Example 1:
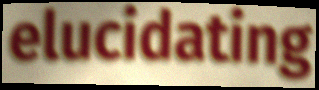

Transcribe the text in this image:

elucidating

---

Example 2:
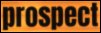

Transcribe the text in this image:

prospect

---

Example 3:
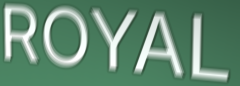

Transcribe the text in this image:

ROYAL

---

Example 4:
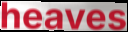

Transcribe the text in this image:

heaves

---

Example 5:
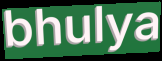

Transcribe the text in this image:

bhulya